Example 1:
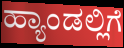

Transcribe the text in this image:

ಹ್ಯಾಂಡಲ್ಲಿಗೆ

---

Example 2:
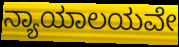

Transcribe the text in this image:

ನ್ಯಾಯಾಲಯವೇ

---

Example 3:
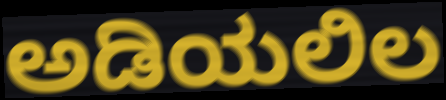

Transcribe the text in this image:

ಅಡಿಯಲಿಲ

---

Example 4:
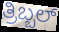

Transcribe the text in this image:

ತ್ರಿಬ್ಬಲ್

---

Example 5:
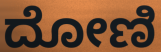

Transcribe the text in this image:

ದೋಣಿ